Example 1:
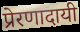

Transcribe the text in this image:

प्रेरणादायी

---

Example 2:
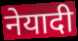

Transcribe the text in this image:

नेयादी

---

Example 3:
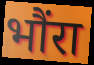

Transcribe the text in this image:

भौंरा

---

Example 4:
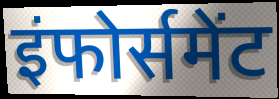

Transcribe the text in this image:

इंफोर्समेंट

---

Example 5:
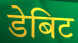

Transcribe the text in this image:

डेबिट